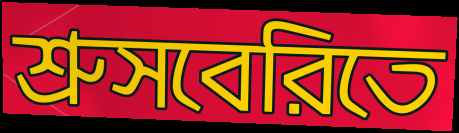
শ্রুসবেরিতে